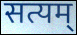
सत्यम्